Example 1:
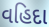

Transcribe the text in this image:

વહિદા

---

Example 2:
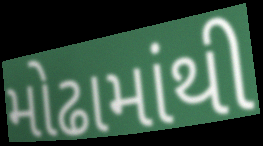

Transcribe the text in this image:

મોઢામાંથી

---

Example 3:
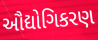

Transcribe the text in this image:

ઔદ્યોગિકરણ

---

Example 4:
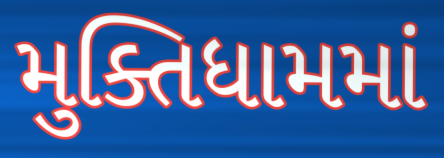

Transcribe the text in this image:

મુક્તિધામમાં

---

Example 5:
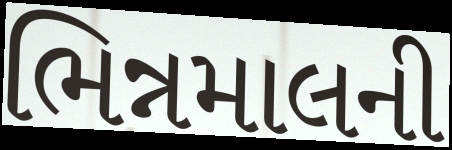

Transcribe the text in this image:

ભિન્નમાલની